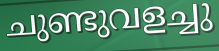
ചുണ്ടുവളച്ചു